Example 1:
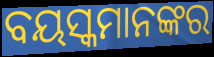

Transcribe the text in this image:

ବୟସ୍କମାନଙ୍କର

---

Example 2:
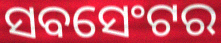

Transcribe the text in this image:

ସବସେଂଟର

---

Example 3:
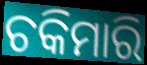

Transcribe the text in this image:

ଚକିମାରି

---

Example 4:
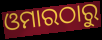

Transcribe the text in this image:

ଓମାରଠାରୁ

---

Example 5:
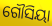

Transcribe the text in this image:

ଗୌସିୟା